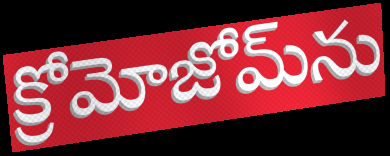
క్రోమోజోమ్‌ను